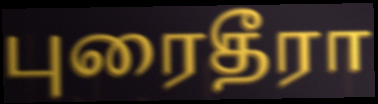
புரைதீரா